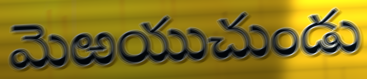
మెఱయుచుండు